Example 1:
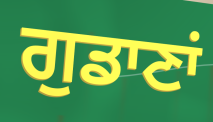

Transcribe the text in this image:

ਗੁਡਾਣਾਂ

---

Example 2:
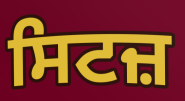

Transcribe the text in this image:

ਸਿਟਜ਼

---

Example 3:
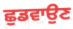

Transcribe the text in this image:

ਛੁਡਵਾਉਣ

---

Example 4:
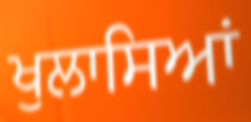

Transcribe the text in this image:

ਖੁਲਾਸਿਆਂ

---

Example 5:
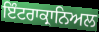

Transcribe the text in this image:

ਇੰਟਰਾਕ੍ਰਾਨਿਅਲ